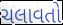
ચલાવતો